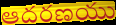
ఆదరణయు